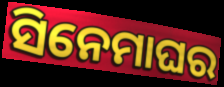
ସିନେମାଘର